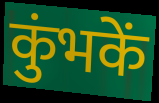
कुंभकें